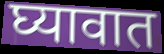
घ्यावात